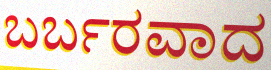
ಬರ್ಬರವಾದ